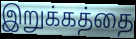
இறுக்கத்தை